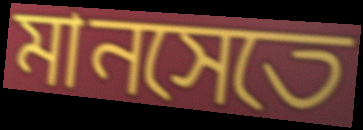
মানসেতে